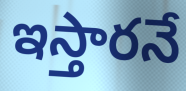
ఇస్తారనే